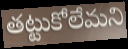
తట్టుకోలేమని